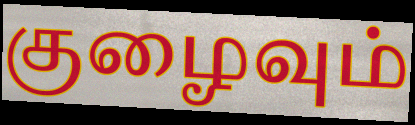
குழைவும்